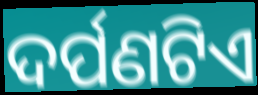
ଦର୍ପଣଟିଏ